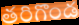
తరిగొండ